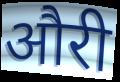
औरी